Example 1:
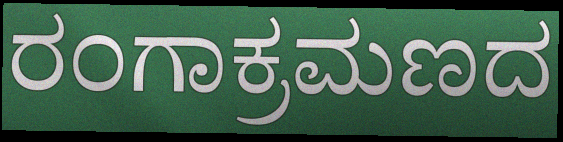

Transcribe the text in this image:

ರಂಗಾಕ್ರಮಣದ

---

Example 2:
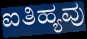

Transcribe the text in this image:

ಐತಿಹ್ಯವು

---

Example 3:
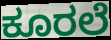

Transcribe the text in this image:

ಕೂರಲೆ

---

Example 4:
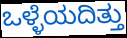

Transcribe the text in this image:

ಒಳ್ಳೆಯದಿತ್ತು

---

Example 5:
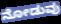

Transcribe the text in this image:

ನೋಡುವು